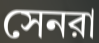
সেনরা